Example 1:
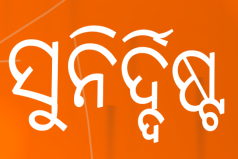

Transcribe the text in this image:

ସୁନିର୍ଦ୍ଦିଷ୍ଟ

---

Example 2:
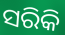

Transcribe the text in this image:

ସରିକି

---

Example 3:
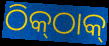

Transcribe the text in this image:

ଠିକ୍‌ଠାକ୍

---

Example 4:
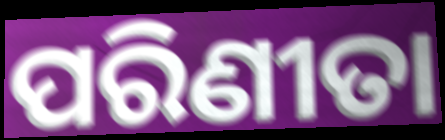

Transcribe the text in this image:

ପରିଣୀତା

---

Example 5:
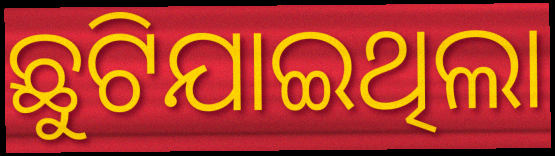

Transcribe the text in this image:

ଛୁଟିଯାଇଥିଲା